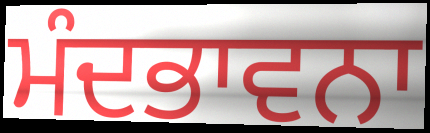
ਮੰਦਭਾਵਨਾ